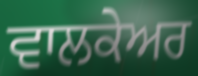
ਵਾਲਕੇਅਰ